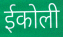
ईकोली